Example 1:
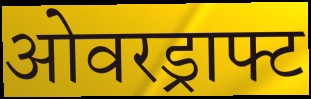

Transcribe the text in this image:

ओवरड्राफ्ट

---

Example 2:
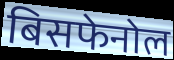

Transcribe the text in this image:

बिसफेनोल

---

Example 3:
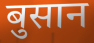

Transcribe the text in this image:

बुसान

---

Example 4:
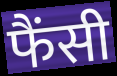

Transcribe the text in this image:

फैंसी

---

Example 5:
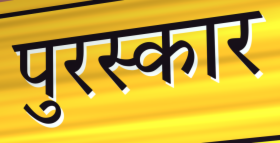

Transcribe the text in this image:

पुरस्कार